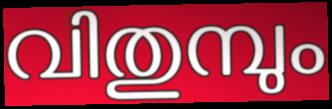
വിതുമ്പും